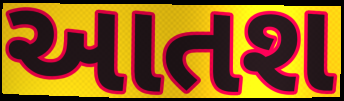
આતશ